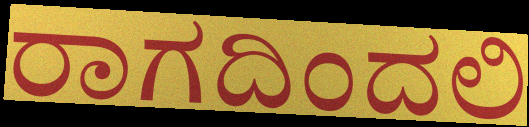
ರಾಗದಿಂದಲಿ